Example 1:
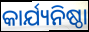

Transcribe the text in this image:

କାର୍ଯ୍ୟନିଷ୍ଠା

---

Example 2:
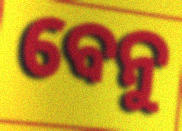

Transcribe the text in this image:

ବେନୁ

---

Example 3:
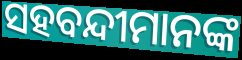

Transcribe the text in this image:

ସହବନ୍ଦୀମାନଙ୍କ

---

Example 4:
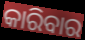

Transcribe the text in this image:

କାରିବାର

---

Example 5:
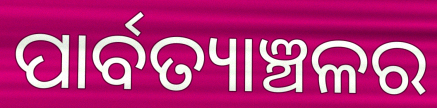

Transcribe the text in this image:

ପାର୍ବତ୍ୟାଞ୍ଚଳର